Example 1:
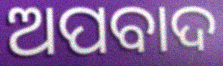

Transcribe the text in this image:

ଅପବାଦ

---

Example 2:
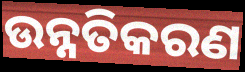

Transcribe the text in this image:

ଉନ୍ନତିକରଣ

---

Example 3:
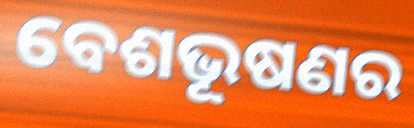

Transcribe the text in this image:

ବେଶଭୂଷଣର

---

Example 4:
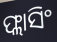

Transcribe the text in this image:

ଫ୍ଲାସିଂ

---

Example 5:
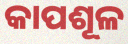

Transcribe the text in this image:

କାପଶୂଳ